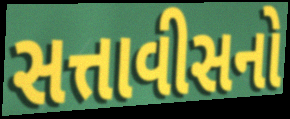
સત્તાવીસનો